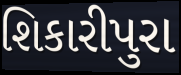
શિકારીપુરા